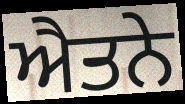
ਐਤਨੇ